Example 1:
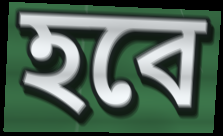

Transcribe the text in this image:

হবে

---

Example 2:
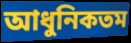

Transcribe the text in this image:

আধুনিকতম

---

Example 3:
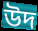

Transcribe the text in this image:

উদ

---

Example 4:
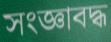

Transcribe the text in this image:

সংজ্ঞাবদ্ধ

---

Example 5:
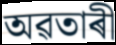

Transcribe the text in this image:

অৱতাৰী